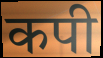
कपी